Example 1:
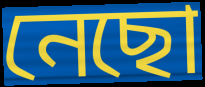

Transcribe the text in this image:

নেছো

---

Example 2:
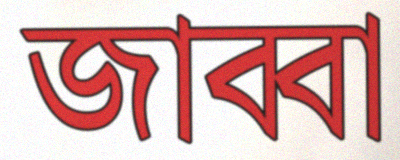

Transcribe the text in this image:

জাব্বা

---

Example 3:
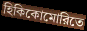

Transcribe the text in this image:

হিকিকোমোরিতে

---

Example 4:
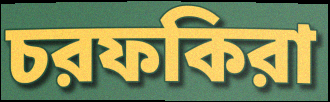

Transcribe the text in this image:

চরফকিরা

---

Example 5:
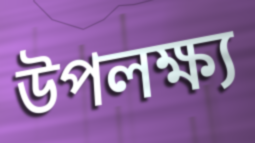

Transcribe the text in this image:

উপলক্ষ্য